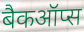
बैकऑप्स